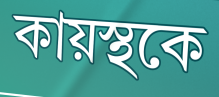
কায়স্থকে